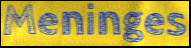
Meninges